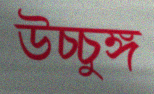
উচ্চুঙ্গ